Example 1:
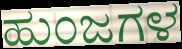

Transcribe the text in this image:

ಹುಂಜಗಳ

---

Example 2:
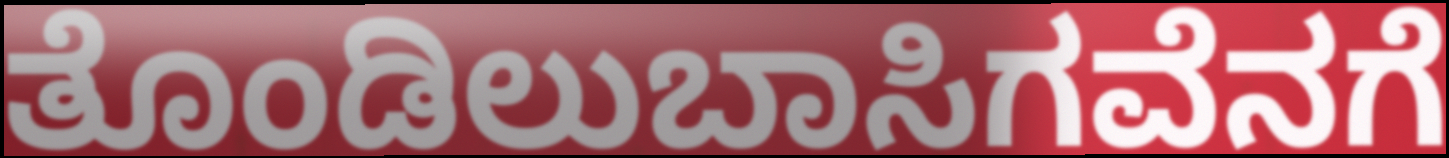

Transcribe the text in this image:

ತೊಂಡಿಲುಬಾಸಿಗವೆನಗೆ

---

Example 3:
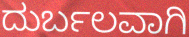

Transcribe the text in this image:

ದುರ್ಬಲವಾಗಿ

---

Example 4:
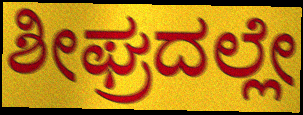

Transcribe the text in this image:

ಶೀಘ್ರದಲ್ಲೇ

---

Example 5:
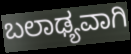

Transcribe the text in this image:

ಬಲಾಢ್ಯವಾಗಿ